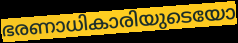
ഭരണാധികാരിയുടെയോ